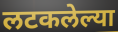
लटकलेल्या